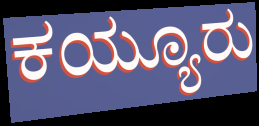
ಕಯ್ಯೂರು